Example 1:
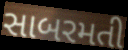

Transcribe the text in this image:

સાબરમતી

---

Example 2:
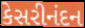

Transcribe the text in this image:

કેસરીનંદન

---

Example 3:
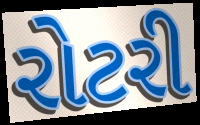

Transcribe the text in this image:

રોટરી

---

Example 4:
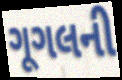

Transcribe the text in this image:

ગૂગલની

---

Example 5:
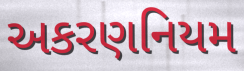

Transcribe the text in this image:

અકરણનિયમ